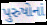
પુરુષોનાં